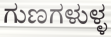
ಗುಣಗಳುಳ್ಳ